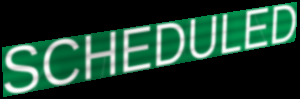
SCHEDULED